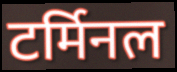
टर्मिनल